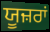
ਯੂਜ਼ਰਾਂ